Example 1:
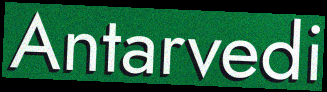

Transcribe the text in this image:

Antarvedi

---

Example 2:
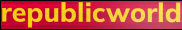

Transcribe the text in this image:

republicworld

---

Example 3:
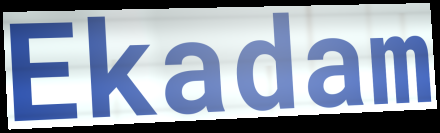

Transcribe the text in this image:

Ekadam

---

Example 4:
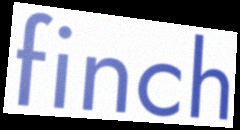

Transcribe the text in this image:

finch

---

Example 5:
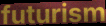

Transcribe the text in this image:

futurism